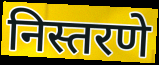
निस्तरणे